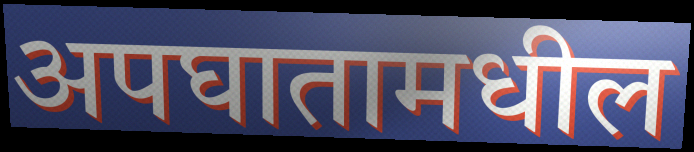
अपघातामधील